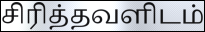
சிரித்தவளிடம்